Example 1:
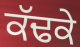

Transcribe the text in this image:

ਕੱਢਕੇ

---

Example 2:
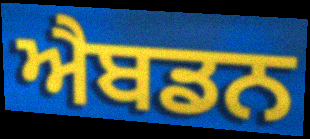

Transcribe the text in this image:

ਐਬਡਨ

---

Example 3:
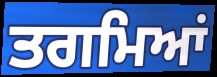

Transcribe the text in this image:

ਤਗਮਿਆਂ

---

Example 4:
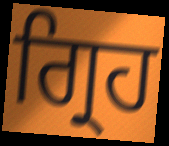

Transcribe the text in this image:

ਗ੍ਰਿਹ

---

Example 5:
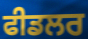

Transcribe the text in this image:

ਫੀਡਲਰ